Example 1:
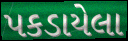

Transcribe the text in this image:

પકડાયેલા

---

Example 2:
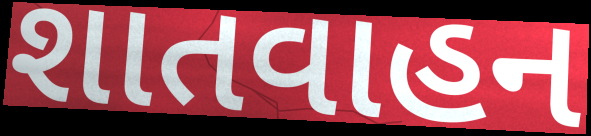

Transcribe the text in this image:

શાતવાહન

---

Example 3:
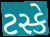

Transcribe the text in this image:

ટસ્કે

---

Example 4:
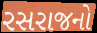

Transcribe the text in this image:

રસરાજનો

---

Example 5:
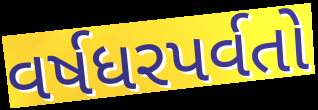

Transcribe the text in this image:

વર્ષધરપર્વતો